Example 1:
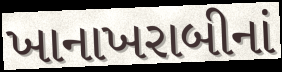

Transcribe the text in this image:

ખાનાખરાબીનાં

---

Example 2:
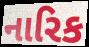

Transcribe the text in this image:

નારિક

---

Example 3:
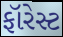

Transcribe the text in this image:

ફૉરેસ્ટ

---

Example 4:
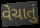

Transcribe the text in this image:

વેચાતું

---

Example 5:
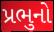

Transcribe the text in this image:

પ્રભુનો